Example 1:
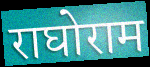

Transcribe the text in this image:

राघोराम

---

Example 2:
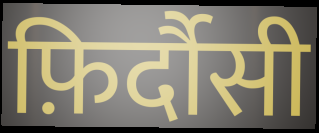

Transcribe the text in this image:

फ़िर्दौसी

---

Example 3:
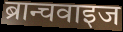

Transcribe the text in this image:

ब्रान्चवाइज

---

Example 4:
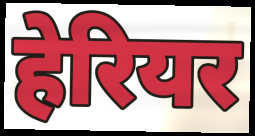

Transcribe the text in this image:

हेरियर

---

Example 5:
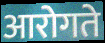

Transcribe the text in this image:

आरोगते